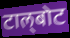
टाल्बोट